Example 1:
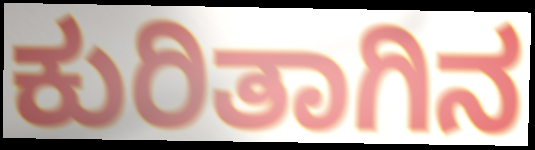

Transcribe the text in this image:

ಕುರಿತಾಗಿನ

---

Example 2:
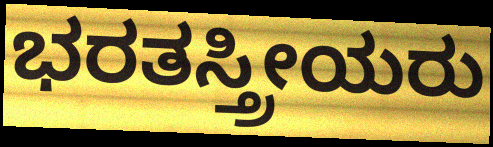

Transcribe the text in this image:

ಭರತಸ್ತ್ರೀಯರು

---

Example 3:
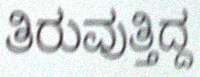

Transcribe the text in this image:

ತಿರುವುತ್ತಿದ್ದ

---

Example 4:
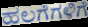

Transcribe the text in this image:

ಹಲಗೆಗಳಿಗೆ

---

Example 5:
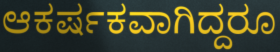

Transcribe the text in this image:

ಆಕರ್ಷಕವಾಗಿದ್ದರೂ